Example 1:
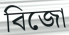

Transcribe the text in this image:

বিজো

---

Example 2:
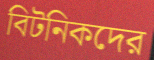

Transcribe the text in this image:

বিটনিকদের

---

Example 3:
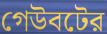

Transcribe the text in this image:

গেউবটের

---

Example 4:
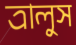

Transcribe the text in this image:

ত্রালুস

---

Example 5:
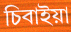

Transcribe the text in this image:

চিবাইয়া